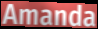
Amanda